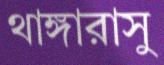
থাঙ্গারাসু